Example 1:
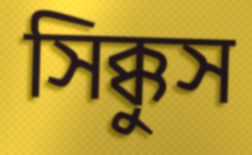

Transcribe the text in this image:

সিক্কুস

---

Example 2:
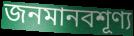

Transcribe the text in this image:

জনমানবশূণ্য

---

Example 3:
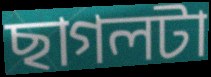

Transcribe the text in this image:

ছাগলটা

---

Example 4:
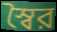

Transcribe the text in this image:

স্বৈর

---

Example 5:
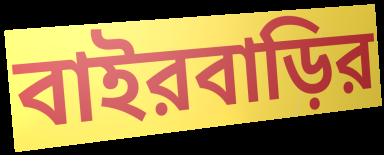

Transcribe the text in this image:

বাইরবাড়ির